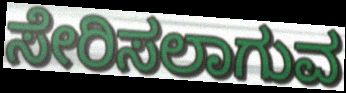
ಸೇರಿಸಲಾಗುವ